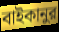
বাইকানুর